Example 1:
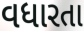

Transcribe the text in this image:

વધારતા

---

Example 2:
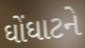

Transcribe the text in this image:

ઘોંઘાટને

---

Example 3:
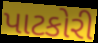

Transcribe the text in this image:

પાટકોરી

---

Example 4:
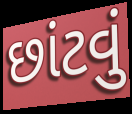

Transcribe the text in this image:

છાંટવું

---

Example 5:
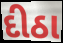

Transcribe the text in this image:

દીઠા